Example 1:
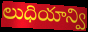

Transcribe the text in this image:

లుధియాన్వి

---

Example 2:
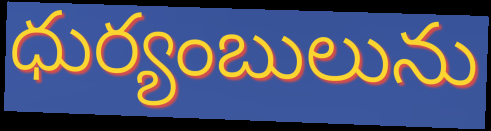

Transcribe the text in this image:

ధుర్యంబులును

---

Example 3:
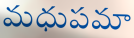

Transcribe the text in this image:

మధుపమా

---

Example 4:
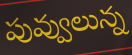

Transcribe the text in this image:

పువ్వులున్న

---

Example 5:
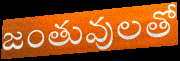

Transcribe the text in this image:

జంతువులతో